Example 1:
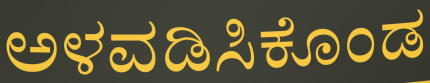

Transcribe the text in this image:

ಅಳವಡಿಸಿಕೊಂಡ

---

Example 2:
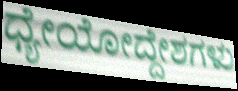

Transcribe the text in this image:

ಧ್ಯೇಯೋದ್ದೇಶಗಳು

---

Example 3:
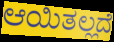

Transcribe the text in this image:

ಆಯಿತಲ್ಲದೆ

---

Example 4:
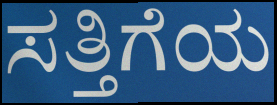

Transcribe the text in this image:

ಸತ್ತಿಗೆಯ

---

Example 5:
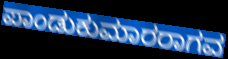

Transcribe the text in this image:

ಪಾಂಡುಕುಮಾರರಾಗವ